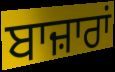
ਬਾਜ਼ਾਰਾਂ